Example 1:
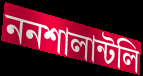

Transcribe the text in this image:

ননশালান্টলি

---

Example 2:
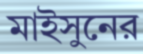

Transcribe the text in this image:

মাইসুনের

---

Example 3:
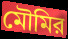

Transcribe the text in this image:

মৌমির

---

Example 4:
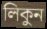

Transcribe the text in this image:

লিকুন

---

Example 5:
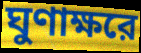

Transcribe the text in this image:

ঘুণাক্ষরে